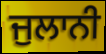
ਜੁਲਾਨੀ